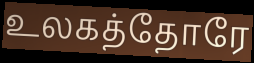
உலகத்தோரே